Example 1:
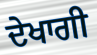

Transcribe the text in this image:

ਦੇਖਾਗੀ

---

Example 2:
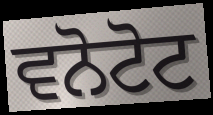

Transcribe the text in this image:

ਵਨੋਟੋਟ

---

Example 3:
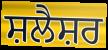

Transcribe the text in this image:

ਸ਼ਲੈਸ਼ਰ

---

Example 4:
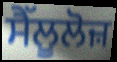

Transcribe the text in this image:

ਸੈੱਲੂਲੋਜ਼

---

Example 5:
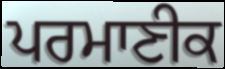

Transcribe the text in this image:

ਪਰਮਾਣੀਕ